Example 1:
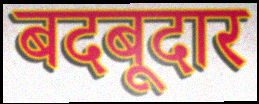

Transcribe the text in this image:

बदबूदार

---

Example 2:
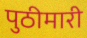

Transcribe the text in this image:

पुठीमारी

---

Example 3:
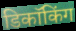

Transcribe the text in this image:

डिकॉकिंग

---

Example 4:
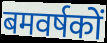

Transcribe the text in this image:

बमवर्षकों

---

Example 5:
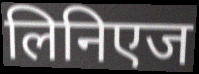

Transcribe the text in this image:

लिनिएज